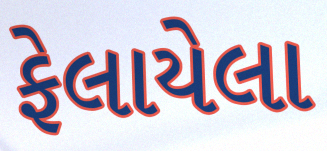
ફેલાયેલા